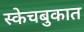
स्केचबुकात